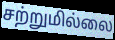
சற்றுமில்லை